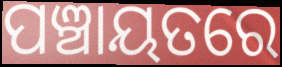
ପଞ୍ଚାୟତରେ